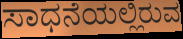
ಸಾಧನೆಯಲ್ಲಿರುವ